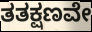
ತತಕ್ಷಣವೇ